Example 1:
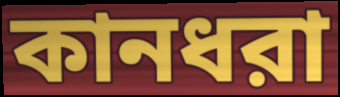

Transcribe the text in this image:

কানধরা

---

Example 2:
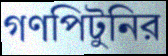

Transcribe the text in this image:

গণপিটুনির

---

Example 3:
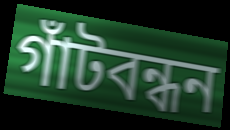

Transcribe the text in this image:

গাঁটবন্ধন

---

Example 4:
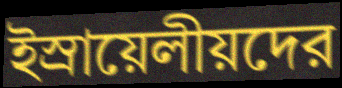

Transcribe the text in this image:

ইস্রায়েলীয়দের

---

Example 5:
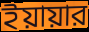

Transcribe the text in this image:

ইয়ায়ার